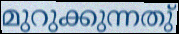
മുറുക്കുന്നതു്